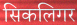
सिकलिगर